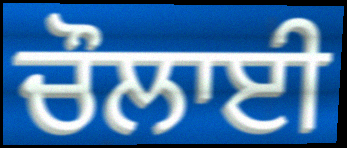
ਚੌਲਾਈ